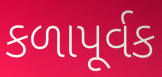
કળાપૂર્વક